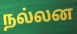
நல்லன